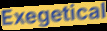
Exegetical